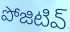
పోజిటివ్